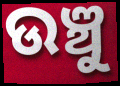
ଉଞ୍ଚୁ